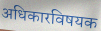
अधिकारविषयक